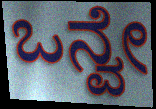
ಒನ್ವೇ